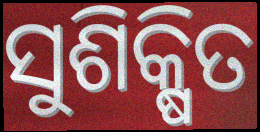
ସୁଶିକ୍ଷିତ